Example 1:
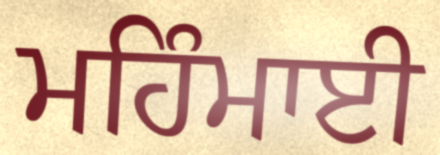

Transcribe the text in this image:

ਮਹਿੰਮਾਈ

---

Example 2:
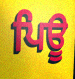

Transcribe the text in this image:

ਪਿਊ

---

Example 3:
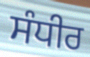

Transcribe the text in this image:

ਸੰਧੀਰ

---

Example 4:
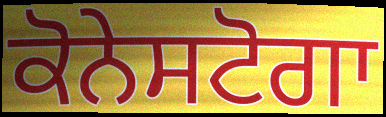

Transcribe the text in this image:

ਕੋਨੇਸਟੋਗਾ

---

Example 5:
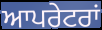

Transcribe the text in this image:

ਆਪਰੇਟਰਾਂ